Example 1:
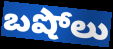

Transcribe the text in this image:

బషోలు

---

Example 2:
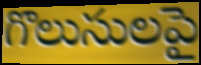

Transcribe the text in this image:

గొలుసులపై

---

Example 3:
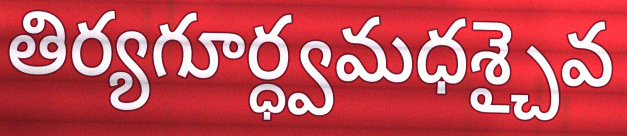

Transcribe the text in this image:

తిర్యగూర్ధ్వమధశ్చైవ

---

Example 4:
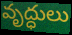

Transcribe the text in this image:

వృద్ధులు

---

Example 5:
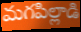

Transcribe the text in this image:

మగపిల్లాడి